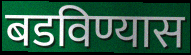
बडविण्यास